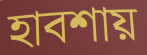
হাবশায়